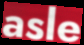
asle